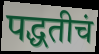
पद्धतीचं